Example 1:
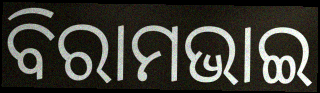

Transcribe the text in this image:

ବିରାମଭାଇ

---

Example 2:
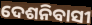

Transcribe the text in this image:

ଦେଶନିବାସୀ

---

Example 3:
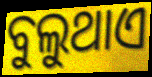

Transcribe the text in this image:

ବୁଲୁଥାଏ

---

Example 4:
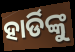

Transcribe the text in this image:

ହାର୍ଡିଙ୍କୁ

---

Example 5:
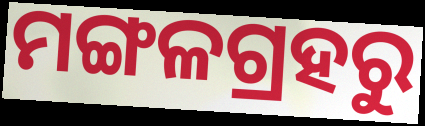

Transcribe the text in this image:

ମଙ୍ଗଳଗ୍ରହରୁ